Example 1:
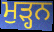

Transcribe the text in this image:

ਮੁੜ੍ਹਨ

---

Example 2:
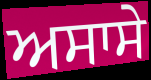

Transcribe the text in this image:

ਅਸਾਸੇ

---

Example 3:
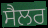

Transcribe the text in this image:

ਸੈਲਰ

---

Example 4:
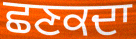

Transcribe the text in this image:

ਛਣਕਦਾ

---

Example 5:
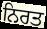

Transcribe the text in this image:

ਨਿਰਤ